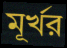
মূর্খর